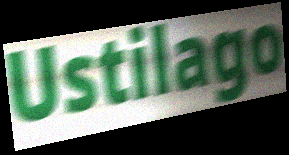
Ustilago